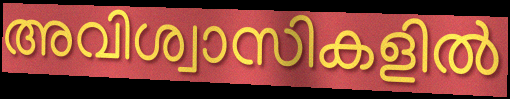
അവിശ്വാസികളിൽ